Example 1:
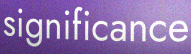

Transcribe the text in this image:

significance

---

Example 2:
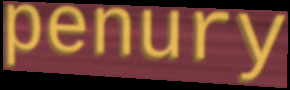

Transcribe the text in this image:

penury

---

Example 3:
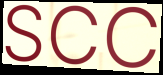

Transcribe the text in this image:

SCC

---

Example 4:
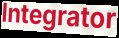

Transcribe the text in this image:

Integrator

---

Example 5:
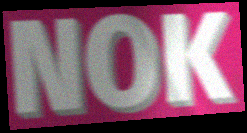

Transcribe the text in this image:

NOK